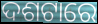
ଦଶଟାରେ